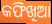
କଫିଖିଆ